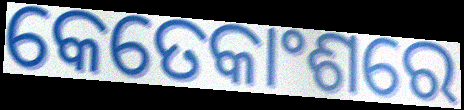
କେତେକାଂଶରେ